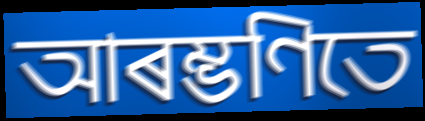
আৰম্ভণিতে